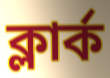
ক্লার্ক